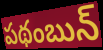
పథంబున్